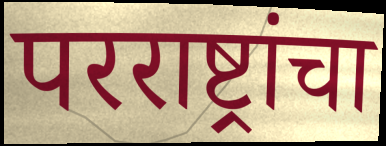
परराष्ट्रांचा